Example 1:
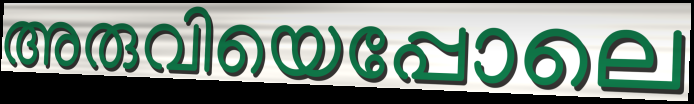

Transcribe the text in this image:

അരുവിയെപ്പോലെ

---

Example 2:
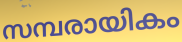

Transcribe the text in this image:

സമ്പരായികം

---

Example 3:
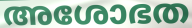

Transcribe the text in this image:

അശോഭത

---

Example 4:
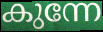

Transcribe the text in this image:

കുന്നേ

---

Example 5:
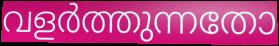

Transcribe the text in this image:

വളർത്തുന്നതോ